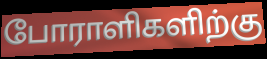
போராளிகளிற்கு